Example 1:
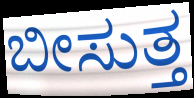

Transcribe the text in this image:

ಬೀಸುತ್ತ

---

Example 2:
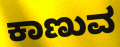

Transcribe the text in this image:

ಕಾಣುವ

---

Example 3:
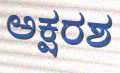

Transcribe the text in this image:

ಅಕ್ಷರಶ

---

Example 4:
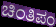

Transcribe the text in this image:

ಚಿಂತಿಪಂ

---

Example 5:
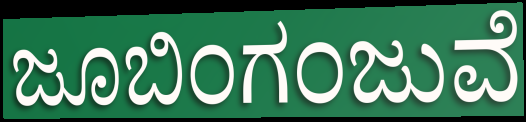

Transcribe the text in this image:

ಜೂಬಿಂಗಂಜುವೆ